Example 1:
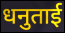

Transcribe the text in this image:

धनुताई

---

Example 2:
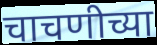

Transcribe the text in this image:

चाचणीच्या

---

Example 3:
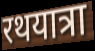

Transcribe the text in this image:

रथयात्रा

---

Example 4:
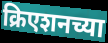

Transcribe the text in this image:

क्रिएशनच्या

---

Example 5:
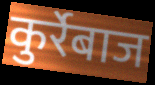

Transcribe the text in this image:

कुर्रेबाज